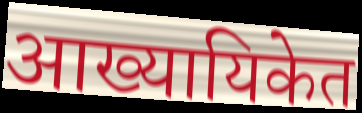
आख्यायिकेत